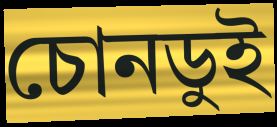
চোনডুই